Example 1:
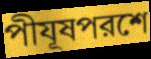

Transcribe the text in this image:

পীযূষপরশে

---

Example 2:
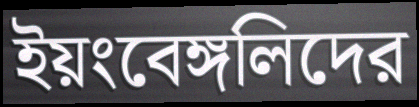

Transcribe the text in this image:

ইয়ংবেঙ্গলিদের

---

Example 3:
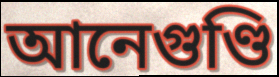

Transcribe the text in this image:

আনেগুণ্ডি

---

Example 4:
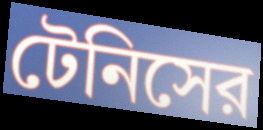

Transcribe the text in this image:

টেনিসের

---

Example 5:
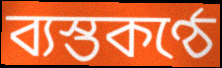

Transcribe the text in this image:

ব্যস্তকণ্ঠে